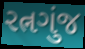
રત્નગુંજ